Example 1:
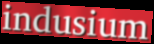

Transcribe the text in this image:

indusium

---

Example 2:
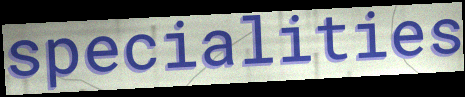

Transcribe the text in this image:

specialities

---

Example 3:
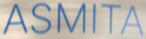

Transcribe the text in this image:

ASMITA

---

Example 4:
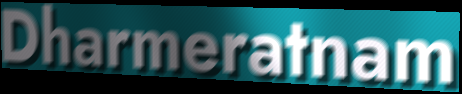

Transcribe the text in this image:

Dharmeratnam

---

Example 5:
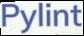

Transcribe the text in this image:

Pylint